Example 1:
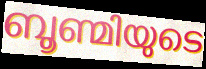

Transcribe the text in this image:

ബൂണ്മിയുടെ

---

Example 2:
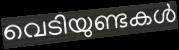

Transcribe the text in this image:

വെടിയുണ്ടകൾ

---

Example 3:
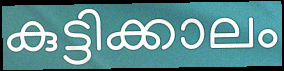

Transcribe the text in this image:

കുട്ടിക്കാലം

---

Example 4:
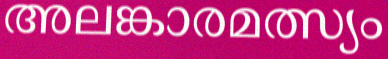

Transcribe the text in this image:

അലങ്കാരമത്സ്യം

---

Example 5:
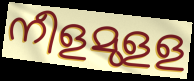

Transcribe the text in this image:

നീളമുളള